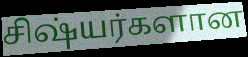
சிஷ்யர்களான